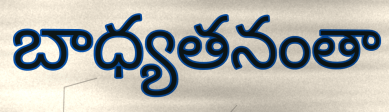
బాధ్యతనంతా